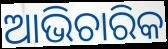
ଆଭିଚାରିକ